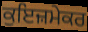
ਕੁਇਜ਼ਮੇਕਰ